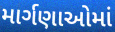
માર્ગણાઓમાં